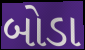
બોડા